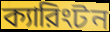
ক্যারিংটন